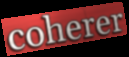
coherer